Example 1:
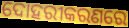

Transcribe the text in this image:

ଦୋହରୀକରଣରେ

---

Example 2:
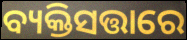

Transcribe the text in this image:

ବ୍ୟକ୍ତିସତ୍ତାରେ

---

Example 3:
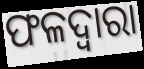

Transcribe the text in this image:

ଫଳଦ୍ୱାରା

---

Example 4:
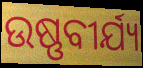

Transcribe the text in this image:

ଉଷ୍ଣବୀର୍ଯ୍ୟ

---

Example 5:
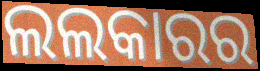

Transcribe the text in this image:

ଲଲକାରର